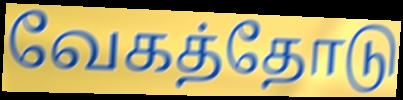
வேகத்தோடு